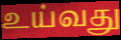
உய்வது